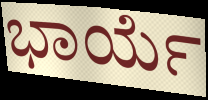
ಭಾರ್ಯೆ